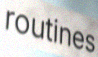
routines